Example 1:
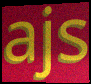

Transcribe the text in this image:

ajs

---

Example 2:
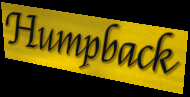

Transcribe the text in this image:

Humpback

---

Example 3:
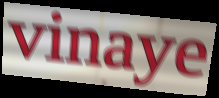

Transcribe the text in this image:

vinaye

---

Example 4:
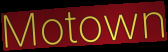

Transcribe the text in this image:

Motown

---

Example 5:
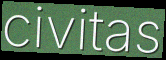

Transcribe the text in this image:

civitas